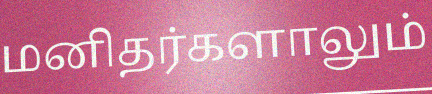
மனிதர்களாலும்